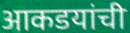
आकडयांची